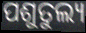
ପଶୁତୁଲ୍ୟ